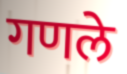
गणले